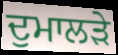
ਦੁਮਾਲੜੇ